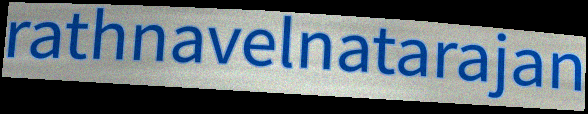
rathnavelnatarajan